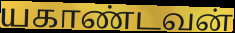
யகாண்டவன்